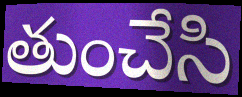
తుంచేసి